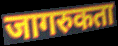
जागरुकता